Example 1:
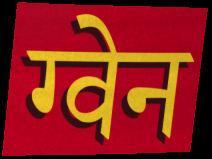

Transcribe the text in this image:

ग्वेन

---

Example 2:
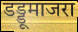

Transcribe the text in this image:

डड्डूमाजरा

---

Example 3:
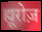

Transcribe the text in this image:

ह्यूरोज़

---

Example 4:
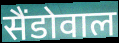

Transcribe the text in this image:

सैंडोवाल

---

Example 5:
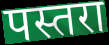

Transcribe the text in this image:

पस्तरा